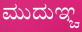
ಮುದುಞ್ಚ